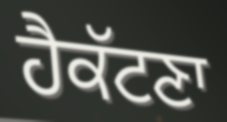
ਹੈਕੱਟਣਾ